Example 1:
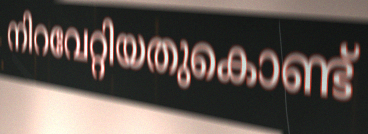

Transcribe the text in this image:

നിറവേറ്റിയതുകൊണ്ട്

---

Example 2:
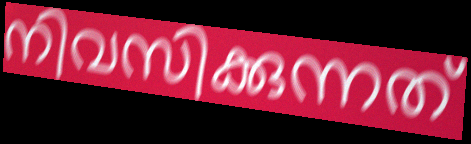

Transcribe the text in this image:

നിവസിക്കുന്നത്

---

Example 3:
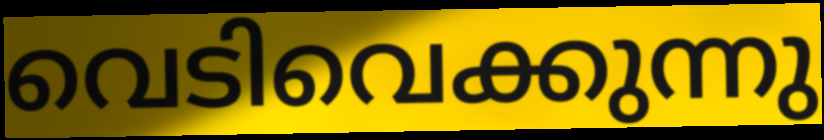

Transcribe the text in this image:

വെടിവെക്കുന്നു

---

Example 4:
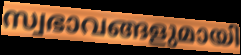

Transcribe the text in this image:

സ്വഭാവങ്ങളുമായി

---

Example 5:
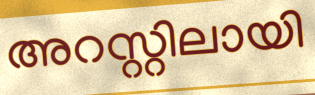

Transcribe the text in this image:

അറസ്റ്റിലായി